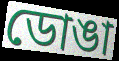
ডোঙা